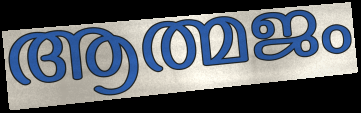
ആത്മജം